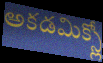
అకడమిక్స్లో